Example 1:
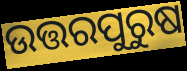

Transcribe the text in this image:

ଉତ୍ତରପୁରୁଷ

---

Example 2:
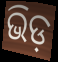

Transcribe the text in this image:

ଭିଡ଼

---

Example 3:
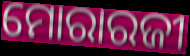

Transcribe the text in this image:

ମୋରାରଜୀ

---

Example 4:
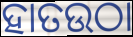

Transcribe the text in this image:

ହାତଉଠା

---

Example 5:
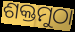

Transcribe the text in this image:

ଶକ୍ତମୁଠା